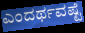
ಎಂದರ್ಥವಷ್ಟೆ